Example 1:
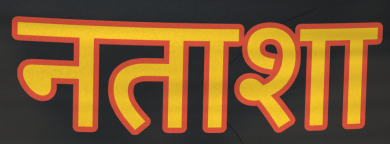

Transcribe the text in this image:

नताशा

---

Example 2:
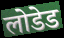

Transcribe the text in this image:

लोडेड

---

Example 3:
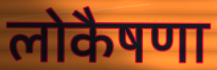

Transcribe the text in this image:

लोकैषणा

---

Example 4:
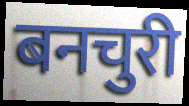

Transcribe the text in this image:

बनचुरी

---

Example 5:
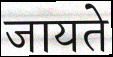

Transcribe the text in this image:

जायते